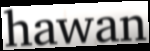
hawan